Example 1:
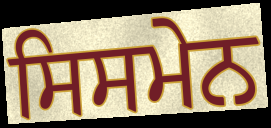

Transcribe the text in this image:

ਸਿਸਮੇਨ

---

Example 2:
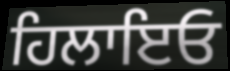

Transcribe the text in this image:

ਹਿਲਾਇਓ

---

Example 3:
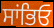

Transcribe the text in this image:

ਸਾਂਭਿਓ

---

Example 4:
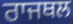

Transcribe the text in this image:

ਰਾਜਥਲ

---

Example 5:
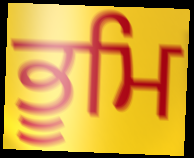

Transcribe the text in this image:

ਭੂਮਿ